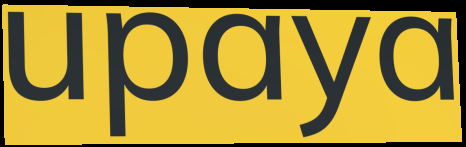
upaya